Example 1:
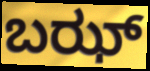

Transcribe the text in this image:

ಬಝ್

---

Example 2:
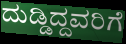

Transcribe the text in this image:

ದುಡ್ಡಿದ್ದವರಿಗೆ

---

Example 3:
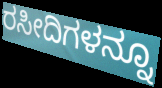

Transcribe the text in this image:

ರಸೀದಿಗಳನ್ನೂ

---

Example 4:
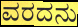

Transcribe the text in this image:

ವರದನು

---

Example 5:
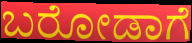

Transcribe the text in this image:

ಬರೋಡಾಗೆ